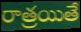
రాత్రయితే